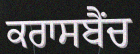
ਕਰਾਸਬੈਂਚ